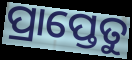
ପ୍ରାପ୍ତେତୁ